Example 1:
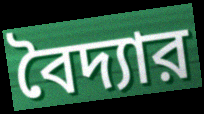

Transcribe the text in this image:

বৈদ্যার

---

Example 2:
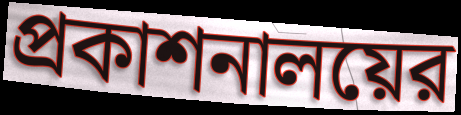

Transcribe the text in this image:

প্রকাশনালয়ের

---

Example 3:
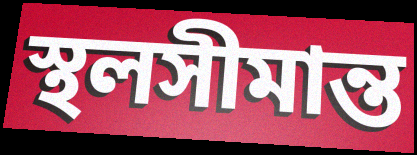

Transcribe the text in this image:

স্থলসীমান্ত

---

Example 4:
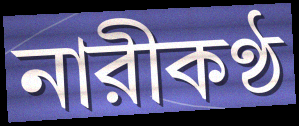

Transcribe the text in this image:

নারীকণ্ঠ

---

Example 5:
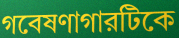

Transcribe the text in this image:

গবেষণাগারটিকে